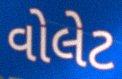
વોલેટ